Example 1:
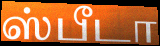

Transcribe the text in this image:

ஸ்பீடா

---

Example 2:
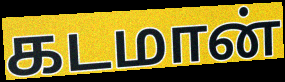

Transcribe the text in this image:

கடமான்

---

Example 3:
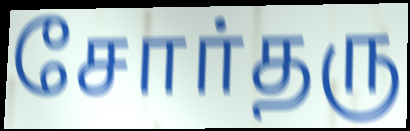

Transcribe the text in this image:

சோர்தரு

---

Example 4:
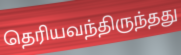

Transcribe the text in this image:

தெரியவந்திருந்தது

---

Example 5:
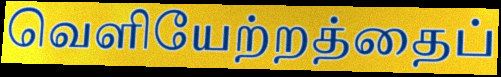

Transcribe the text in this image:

வெளியேற்றத்தைப்